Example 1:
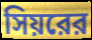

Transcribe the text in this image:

সিয়রের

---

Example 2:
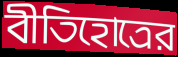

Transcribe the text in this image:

বীতিহোত্রের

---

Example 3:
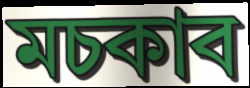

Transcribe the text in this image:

মচকাব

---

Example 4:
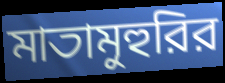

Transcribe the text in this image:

মাতামুহুরির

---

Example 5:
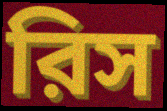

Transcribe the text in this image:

রিস